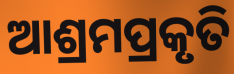
ଆଶ୍ରମପ୍ରକୃତି